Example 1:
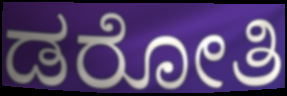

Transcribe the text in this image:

ಡರೋತಿ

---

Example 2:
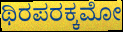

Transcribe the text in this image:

ಥಿರಪರಕ್ಕಮೋ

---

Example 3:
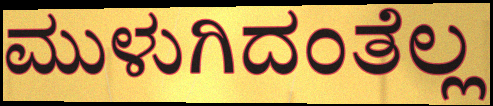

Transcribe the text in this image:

ಮುಳುಗಿದಂತೆಲ್ಲ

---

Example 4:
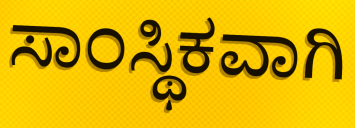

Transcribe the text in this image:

ಸಾಂಸ್ಥಿಕವಾಗಿ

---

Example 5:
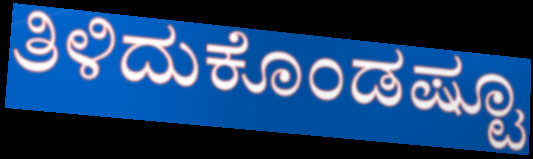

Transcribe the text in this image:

ತಿಳಿದುಕೊಂಡಷ್ಟೂ